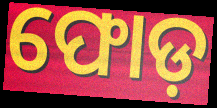
ଫୋଡ଼